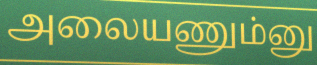
அலையணும்னு